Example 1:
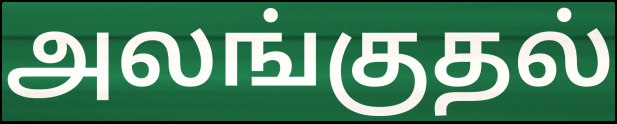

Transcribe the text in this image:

அலங்குதல்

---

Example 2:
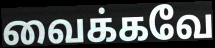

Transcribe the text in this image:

வைக்கவே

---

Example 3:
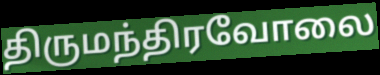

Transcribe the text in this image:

திருமந்திரவோலை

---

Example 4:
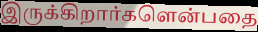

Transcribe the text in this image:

இருக்கிறார்களென்பதை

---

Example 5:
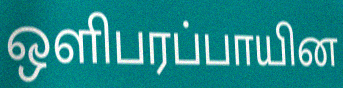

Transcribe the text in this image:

ஒளிபரப்பாயின